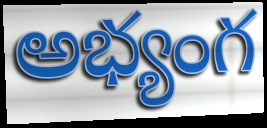
అభ్యంగ